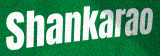
Shankarao